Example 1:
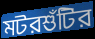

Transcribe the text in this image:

মটরশুঁটির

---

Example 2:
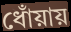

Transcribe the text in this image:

ধোঁয়ায়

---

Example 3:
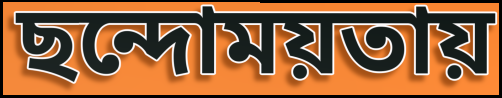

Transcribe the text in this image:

ছন্দোময়তায়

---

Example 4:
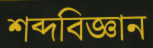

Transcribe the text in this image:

শব্দবিজ্ঞান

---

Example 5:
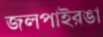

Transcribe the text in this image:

জলপাইরঙা